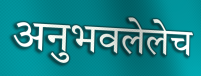
अनुभवलेलेच